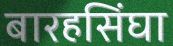
बारहसिंघा